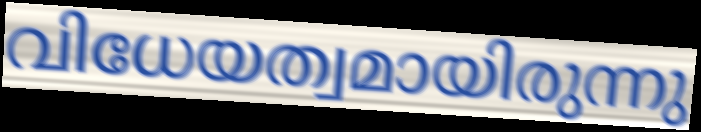
വിധേയത്വമായിരുന്നു